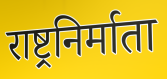
राष्ट्रनिर्माता